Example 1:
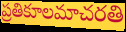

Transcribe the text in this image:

ప్రతికూలమాచరతి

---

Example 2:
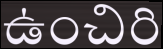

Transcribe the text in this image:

ఉంచిరి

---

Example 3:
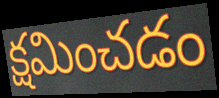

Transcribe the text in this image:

క్షమించడం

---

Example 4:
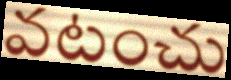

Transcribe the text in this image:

వటంచు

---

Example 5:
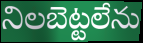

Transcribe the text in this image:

నిలబెట్టలేను